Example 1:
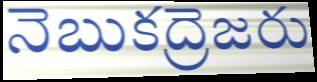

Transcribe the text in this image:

నెబుకద్రెజరు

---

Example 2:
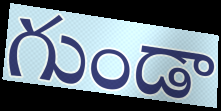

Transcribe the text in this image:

గుండా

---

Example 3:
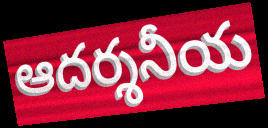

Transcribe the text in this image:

ఆదర్శనీయ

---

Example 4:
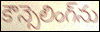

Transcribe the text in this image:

కౌన్సెలింగ్‌ను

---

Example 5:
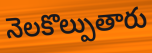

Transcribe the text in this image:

నెలకొల్పుతారు